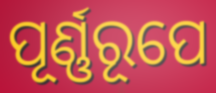
ପୂର୍ଣ୍ଣରୂପେ